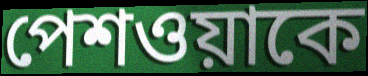
পেশওয়াকে